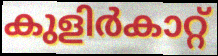
കുളിർകാറ്റ്